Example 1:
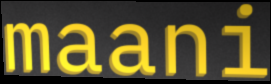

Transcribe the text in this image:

maani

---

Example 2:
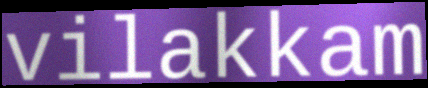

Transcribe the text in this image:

vilakkam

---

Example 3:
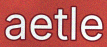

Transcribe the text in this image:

aetle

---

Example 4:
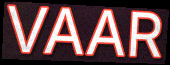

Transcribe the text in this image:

VAAR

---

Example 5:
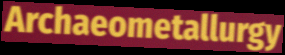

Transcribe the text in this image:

Archaeometallurgy